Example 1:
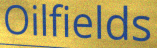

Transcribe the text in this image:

Oilfields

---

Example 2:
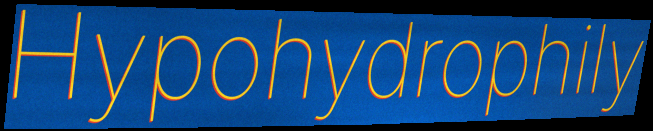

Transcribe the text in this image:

Hypohydrophily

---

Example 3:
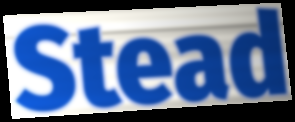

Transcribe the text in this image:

Stead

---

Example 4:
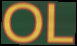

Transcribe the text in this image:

OL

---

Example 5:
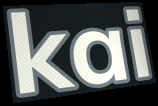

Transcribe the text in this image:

kai